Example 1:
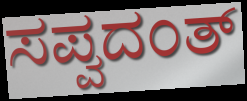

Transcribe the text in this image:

ಸಪ್ವದಂತ್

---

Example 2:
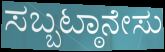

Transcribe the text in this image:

ಸಬ್ಬಟ್ಠಾನೇಸು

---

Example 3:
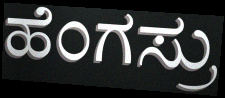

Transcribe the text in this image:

ಹೆಂಗಸ್ರು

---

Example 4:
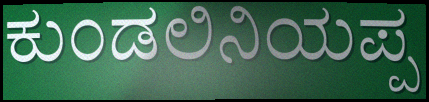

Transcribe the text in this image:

ಕುಂಡಲಿನಿಯಪ್ಪ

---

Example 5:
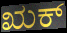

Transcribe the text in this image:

ಋಕ್